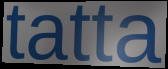
tatta